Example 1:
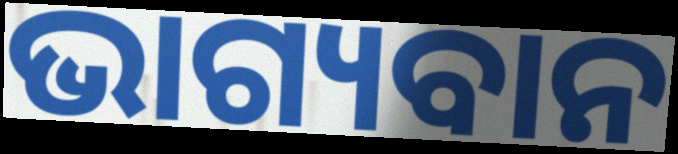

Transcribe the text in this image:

ଭାଗ୍ୟବାନ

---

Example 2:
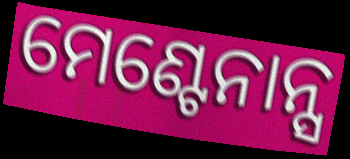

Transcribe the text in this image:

ମେଣ୍ଟେନାନ୍ସ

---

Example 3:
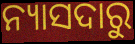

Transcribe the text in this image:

ନ୍ୟାସଦାରୁ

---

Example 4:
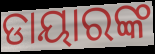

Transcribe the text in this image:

ଡାୟାରଙ୍କ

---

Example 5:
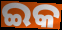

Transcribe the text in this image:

ଇକ